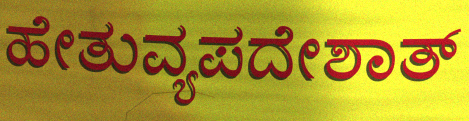
ಹೇತುವ್ಯಪದೇಶಾತ್